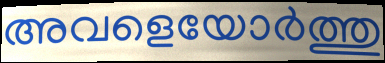
അവളെയോർത്തു